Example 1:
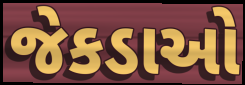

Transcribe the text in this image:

જેકડાઓ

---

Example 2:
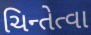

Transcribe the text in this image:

ચિન્તેત્વા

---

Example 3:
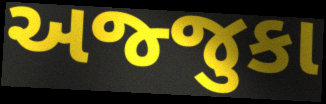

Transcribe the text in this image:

અજ્જુકા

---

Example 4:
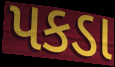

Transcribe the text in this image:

પકડા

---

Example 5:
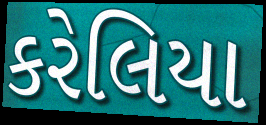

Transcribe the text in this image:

કરેલિયા